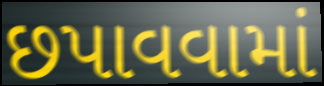
છપાવવામાં